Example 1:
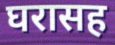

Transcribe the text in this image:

घरासह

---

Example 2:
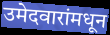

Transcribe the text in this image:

उमेदवारांमधून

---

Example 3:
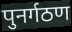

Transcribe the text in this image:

पुनर्गठण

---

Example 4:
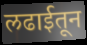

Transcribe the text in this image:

लढाईतून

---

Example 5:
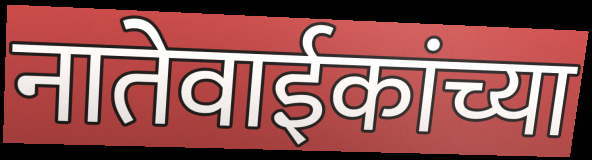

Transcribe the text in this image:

नातेवाईकांच्या